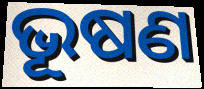
ଭୂଷଣ